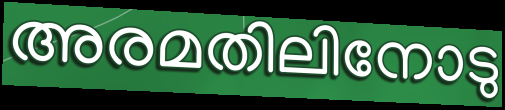
അരമതിലിനോടു